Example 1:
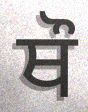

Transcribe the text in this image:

ਥੌ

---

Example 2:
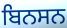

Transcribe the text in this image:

ਬਿਨਸਨ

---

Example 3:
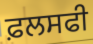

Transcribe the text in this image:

ਫ਼ਲਸਫੀ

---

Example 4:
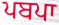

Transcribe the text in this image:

ਪਬਪਾ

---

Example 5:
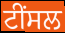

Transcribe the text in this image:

ਟੀਂਸਲ